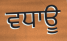
ਵਧਾਊ